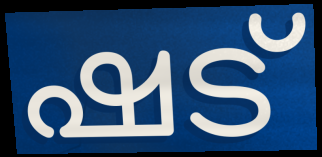
ഷട്